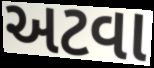
અટવા